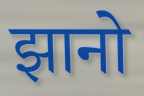
झानो